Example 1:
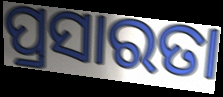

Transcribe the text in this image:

ପ୍ରସାରତା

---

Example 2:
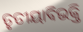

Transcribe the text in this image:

ତୃତୀୟାବିଭକ୍ତି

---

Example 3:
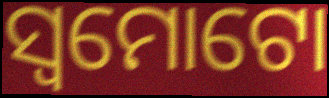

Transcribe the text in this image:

ସ୍ୱମୋଟୋ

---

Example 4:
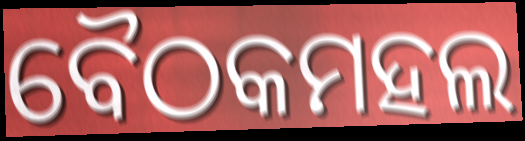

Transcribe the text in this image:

ବୈଠକମହଲ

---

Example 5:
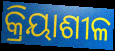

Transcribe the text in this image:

କ୍ରିୟାଶୀଳ